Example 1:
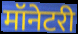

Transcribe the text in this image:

मॉनेटरी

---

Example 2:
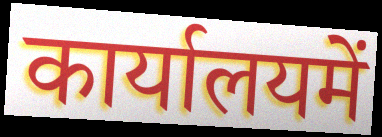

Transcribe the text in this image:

कार्यालयमें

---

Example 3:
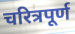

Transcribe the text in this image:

चरित्रपूर्ण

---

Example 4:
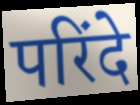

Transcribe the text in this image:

परिंदे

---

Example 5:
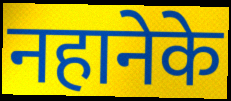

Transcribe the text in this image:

नहानेके